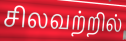
சிலவற்றில்